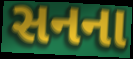
સનના